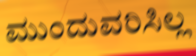
ಮುಂದುವರಿಸಿಲ್ಲ